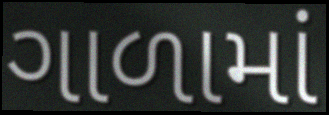
ગાળામાં